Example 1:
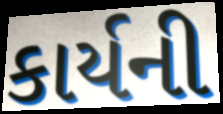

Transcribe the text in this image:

કાર્યની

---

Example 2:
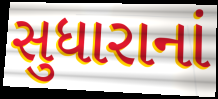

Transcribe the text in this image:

સુધારાનાં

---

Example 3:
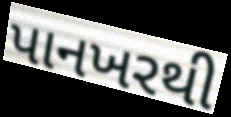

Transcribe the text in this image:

પાનખરથી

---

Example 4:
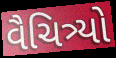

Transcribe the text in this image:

વૈચિત્ર્યો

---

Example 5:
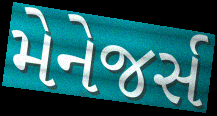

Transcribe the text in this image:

મેનેજર્સ